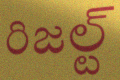
రిజల్ట్